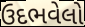
ઉદભવેલો